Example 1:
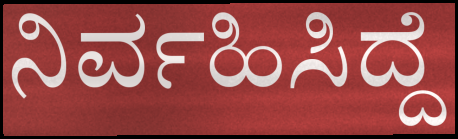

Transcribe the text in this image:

ನಿರ್ವಹಿಸಿದ್ದೆ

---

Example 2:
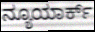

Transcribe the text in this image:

ನ್ಯೂಯಾರ್ಕ್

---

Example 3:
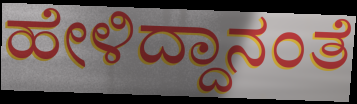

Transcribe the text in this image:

ಹೇಳಿದ್ದಾನಂತೆ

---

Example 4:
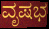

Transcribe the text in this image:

ವೃಷಭ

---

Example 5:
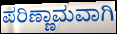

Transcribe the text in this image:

ಪರಿಣ್ಣಾಮವಾಗಿ